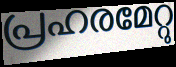
പ്രഹരമേറ്റു